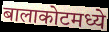
बालाकोटमध्ये